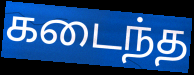
கடைந்த